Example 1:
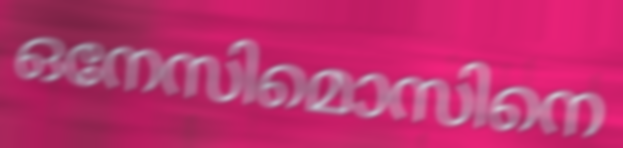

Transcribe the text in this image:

ഒനേസിമൊസിനെ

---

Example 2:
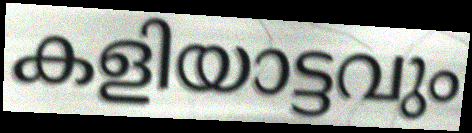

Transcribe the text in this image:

കളിയാട്ടവും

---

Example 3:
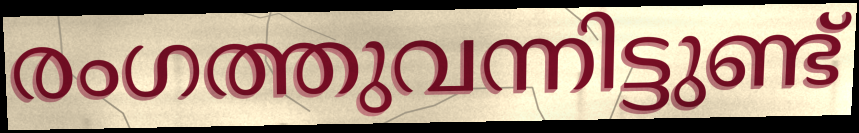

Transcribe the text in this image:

രംഗത്തുവന്നിട്ടുണ്ട്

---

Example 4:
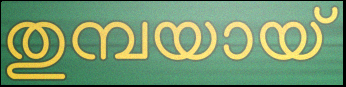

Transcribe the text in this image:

തുമ്പയായ്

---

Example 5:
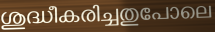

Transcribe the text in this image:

ശുദ്ധീകരിച്ചതുപോലെ